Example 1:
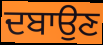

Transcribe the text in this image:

ਦਬਾਉਣ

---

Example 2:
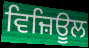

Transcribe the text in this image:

ਵਿਜ਼ਿਊਲ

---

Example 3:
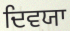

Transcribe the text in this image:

ਦਿਵਯਾ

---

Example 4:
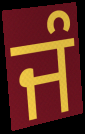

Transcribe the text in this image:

ਜੰ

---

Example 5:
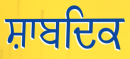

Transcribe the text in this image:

ਸ਼ਾਬਦਿਕ